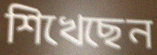
শিখেছেন